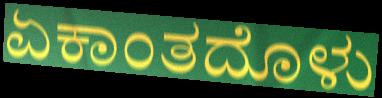
ಏಕಾಂತದೊಳು